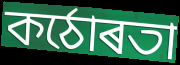
কঠোৰতা